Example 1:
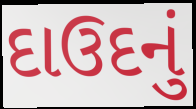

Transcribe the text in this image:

દાઉદનું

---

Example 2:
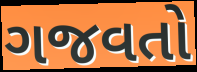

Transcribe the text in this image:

ગજવતો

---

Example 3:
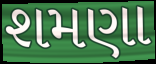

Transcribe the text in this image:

શમણા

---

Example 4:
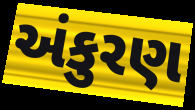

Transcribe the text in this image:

અંકુરણ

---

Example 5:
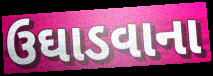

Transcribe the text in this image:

ઉઘાડવાના